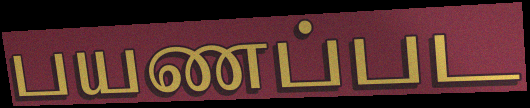
பயணப்பட